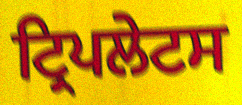
ਟ੍ਰਿਪਲੇਟਸ